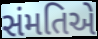
સંમતિએ